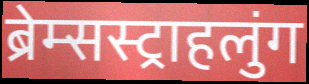
ब्रेम्सस्ट्राहलुंग